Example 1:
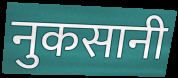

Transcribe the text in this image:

नुकसानी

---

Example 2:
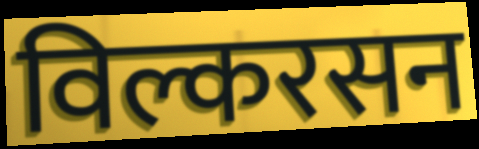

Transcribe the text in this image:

विल्करसन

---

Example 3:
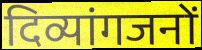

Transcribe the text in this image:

दिव्यांगजनों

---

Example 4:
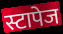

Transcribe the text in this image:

स्टापेज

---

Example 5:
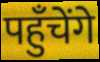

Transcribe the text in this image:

पहुँचेंगे